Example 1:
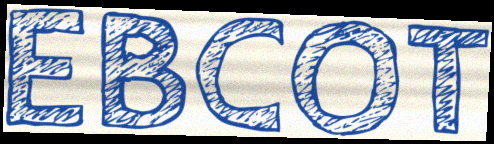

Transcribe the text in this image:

EBCOT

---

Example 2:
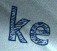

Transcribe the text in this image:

ke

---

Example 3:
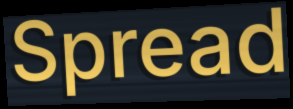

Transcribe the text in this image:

Spread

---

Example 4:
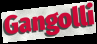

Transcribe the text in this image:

Gangolli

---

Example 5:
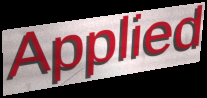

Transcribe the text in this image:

Applied